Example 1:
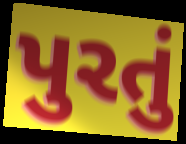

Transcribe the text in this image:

પુરતું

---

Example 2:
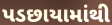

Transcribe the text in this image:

પડછાયામાંથી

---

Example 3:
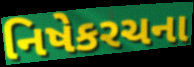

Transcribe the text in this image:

નિષેકરચના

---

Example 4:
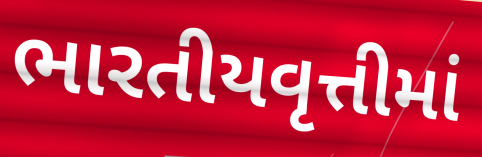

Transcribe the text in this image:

ભારતીયવૃત્તીમાં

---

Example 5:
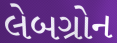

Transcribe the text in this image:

લેબગ્રોન